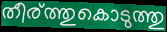
തീര്ത്തുകൊടുത്തു